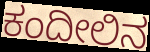
ಕಂದೀಲಿನ